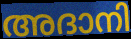
അദാനി